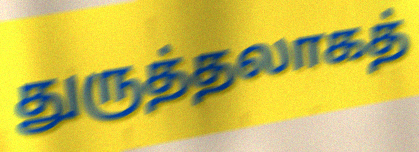
துருத்தலாகத்